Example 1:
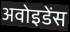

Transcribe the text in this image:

अवोइडेंस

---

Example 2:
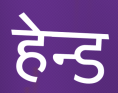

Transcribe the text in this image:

हेन्ड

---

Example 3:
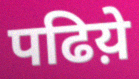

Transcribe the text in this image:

पढिय़े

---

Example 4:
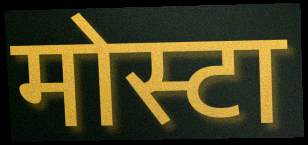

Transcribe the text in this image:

मोस्टा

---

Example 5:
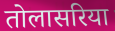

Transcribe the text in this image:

तोलासरिया